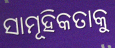
ସାମୂହିକତାକୁ